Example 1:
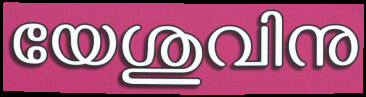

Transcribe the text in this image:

യേശുവിനു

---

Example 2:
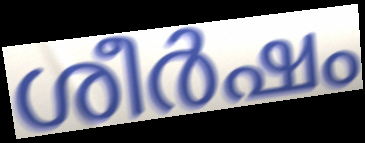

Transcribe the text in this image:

ശീർഷം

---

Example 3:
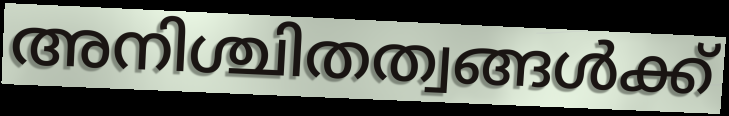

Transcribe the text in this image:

അനിശ്ചിതത്വങ്ങൾക്ക്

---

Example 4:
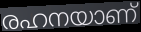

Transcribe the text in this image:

രഹനയാണ്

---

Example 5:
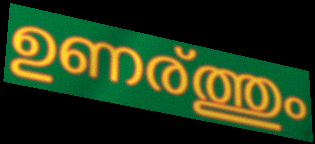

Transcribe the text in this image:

ഉണര്ത്തും